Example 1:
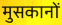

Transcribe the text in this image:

मुसकानों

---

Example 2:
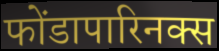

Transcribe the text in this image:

फोंडापारिनक्स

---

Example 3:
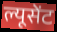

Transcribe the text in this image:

ल्यूसेंट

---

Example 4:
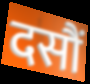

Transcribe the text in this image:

दसौं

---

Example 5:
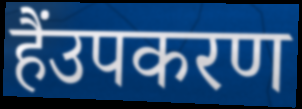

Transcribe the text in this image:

हैंउपकरण